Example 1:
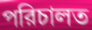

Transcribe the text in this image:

পরিচালত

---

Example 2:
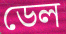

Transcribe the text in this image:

ডেল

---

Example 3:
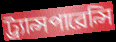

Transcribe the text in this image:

ট্র্যান্সপারেন্সি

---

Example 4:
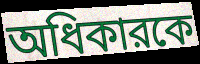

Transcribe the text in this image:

অধিকারকে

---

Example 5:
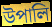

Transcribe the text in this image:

উপালি